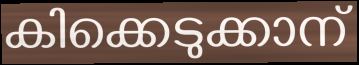
കിക്കെടുക്കാന്